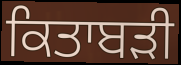
ਕਿਤਾਬੜੀ